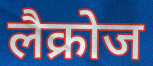
लैक्रोज